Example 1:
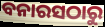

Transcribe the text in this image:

ବନାରସଠାରୁ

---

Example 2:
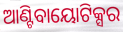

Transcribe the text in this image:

ଆଣ୍ଟିବାୟୋଟିକ୍ସର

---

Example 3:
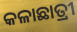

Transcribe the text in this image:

କଳାଛାତ୍ରୀ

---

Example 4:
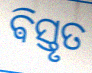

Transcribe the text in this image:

ଵିସ୍ତୃତ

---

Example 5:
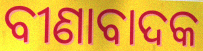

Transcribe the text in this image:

ବୀଣାବାଦକ